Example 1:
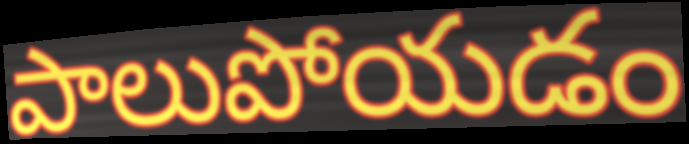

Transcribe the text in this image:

పాలుపోయడం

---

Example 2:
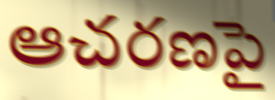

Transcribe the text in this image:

ఆచరణపై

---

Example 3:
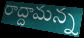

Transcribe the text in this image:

రాద్దామన్న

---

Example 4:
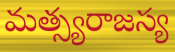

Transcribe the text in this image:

మత్స్యరాజస్య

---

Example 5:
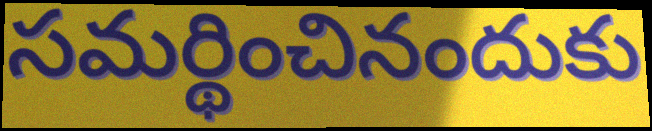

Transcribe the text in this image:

సమర్థించినందుకు